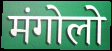
मंगोलो